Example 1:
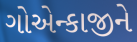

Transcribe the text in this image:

ગોએન્કાજીને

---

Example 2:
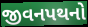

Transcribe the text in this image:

જીવનપથનો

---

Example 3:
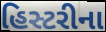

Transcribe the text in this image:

હિસ્ટરીના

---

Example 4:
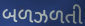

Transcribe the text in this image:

બળઝળતી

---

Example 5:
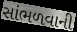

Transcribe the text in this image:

સાંભળવાની